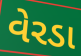
વેરડા